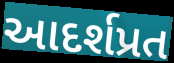
આદર્શપ્રત